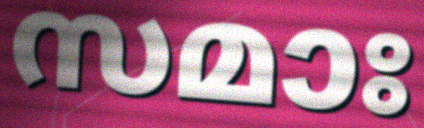
സമാഃ